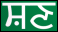
ਸ਼ਣ